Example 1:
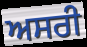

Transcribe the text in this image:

ਅਸਰੀ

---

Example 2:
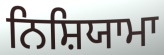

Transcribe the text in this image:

ਨਿਸ਼ਿਯਾਮਾ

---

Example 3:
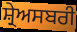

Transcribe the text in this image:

ਸ਼੍ਰੇਅਸਬਰੀ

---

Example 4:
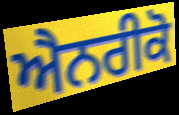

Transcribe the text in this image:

ਐਨਰੀਕੋ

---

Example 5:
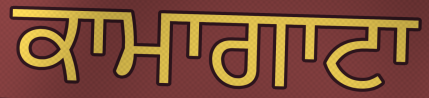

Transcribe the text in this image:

ਕਾਮਾਗਾਟਾ